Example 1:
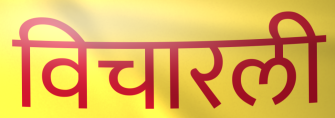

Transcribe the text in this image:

विचारली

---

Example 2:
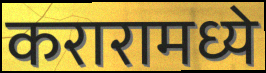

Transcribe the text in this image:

करारामध्ये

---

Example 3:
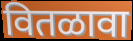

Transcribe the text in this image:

वितळावा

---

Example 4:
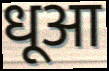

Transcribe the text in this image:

धूआ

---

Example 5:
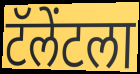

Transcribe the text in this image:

टॅलेंटला